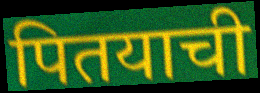
पितयाची